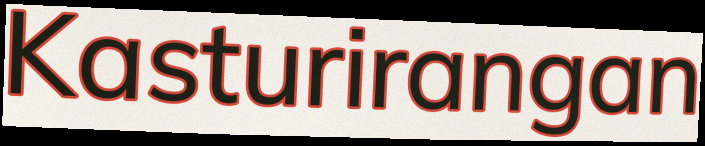
Kasturirangan